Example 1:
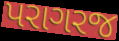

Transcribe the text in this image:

પરાગરજ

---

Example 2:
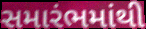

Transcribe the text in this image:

સમારંભમાંથી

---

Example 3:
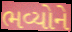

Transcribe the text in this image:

ભવ્યોને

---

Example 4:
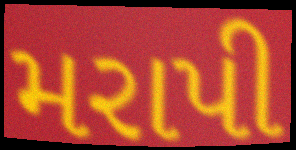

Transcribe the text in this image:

મરાપી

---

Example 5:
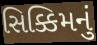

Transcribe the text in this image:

સિક્કિમનું